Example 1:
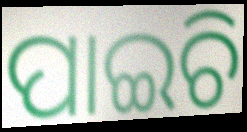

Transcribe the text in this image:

ପାଇଚି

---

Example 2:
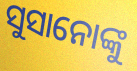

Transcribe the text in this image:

ସୁସାନୋଙ୍କୁ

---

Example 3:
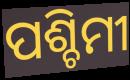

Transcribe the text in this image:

ପଶ୍ଚିମୀ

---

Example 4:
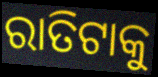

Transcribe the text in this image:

ରାତିଟାକୁ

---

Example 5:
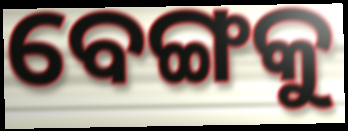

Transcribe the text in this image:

ବେଙ୍ଗକୁ